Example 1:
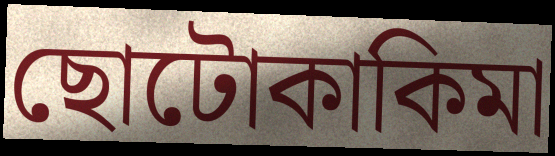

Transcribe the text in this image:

ছোটোকাকিমা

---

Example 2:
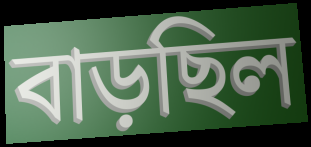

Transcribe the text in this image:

বাড়ছিল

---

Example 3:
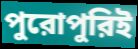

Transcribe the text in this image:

পুরোপুরিই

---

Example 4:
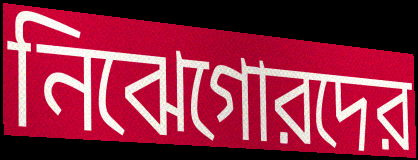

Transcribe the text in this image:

নিঝেগোরদের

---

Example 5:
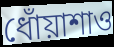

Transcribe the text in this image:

ধোঁয়াশাও